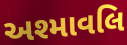
અશ્માવલિ